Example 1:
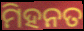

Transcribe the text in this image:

ମିହନତ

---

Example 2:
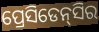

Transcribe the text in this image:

ପ୍ରେସିଡେନ୍‌ସିର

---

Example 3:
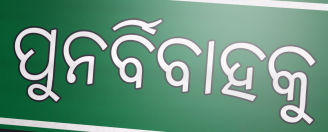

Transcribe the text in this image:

ପୁନର୍ବିବାହକୁ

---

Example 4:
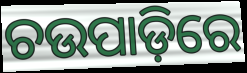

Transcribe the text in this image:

ଚଉପାଡ଼ିରେ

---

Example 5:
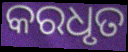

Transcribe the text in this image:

କରଧୃତ